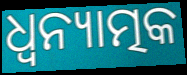
ଧ୍ୱନ୍ୟାତ୍ମକ